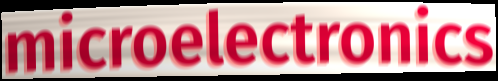
microelectronics